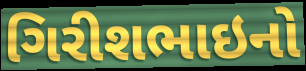
ગિરીશભાઇનો